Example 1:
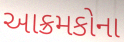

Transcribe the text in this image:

આક્રમકોના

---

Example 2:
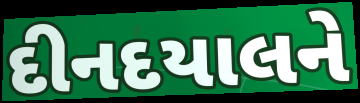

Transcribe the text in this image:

દીનદયાલને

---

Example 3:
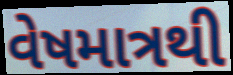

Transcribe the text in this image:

વેષમાત્રથી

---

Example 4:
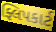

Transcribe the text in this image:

ફ્લિપકાર્ટ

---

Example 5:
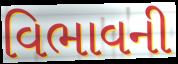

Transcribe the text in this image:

વિભાવની